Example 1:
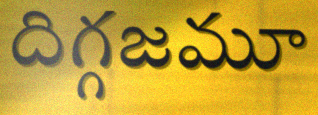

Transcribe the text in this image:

దిగ్గజమూ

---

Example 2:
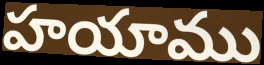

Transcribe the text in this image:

హయాము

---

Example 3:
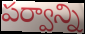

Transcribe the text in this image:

పర్వాన్ని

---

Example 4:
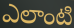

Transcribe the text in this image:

ఎలాంటి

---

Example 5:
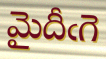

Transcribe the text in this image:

మైదీఁగె